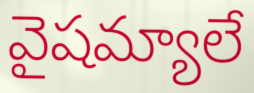
వైషమ్యాలే